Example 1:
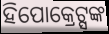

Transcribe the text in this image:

ହିପୋକ୍ରେଟ୍ସଙ୍କ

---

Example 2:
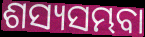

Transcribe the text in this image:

ଶସ୍ୟସମ୍ଭବା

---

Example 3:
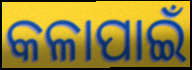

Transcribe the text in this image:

କଳାପାଇଁ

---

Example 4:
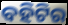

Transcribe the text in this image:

ବହିଟିର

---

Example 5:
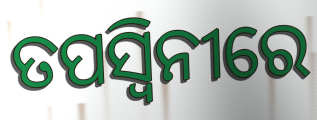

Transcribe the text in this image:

ତପସ୍ଵିନୀରେ